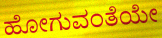
ಹೋಗುವಂತೆಯೇ